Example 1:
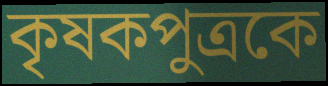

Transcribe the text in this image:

কৃষকপুত্রকে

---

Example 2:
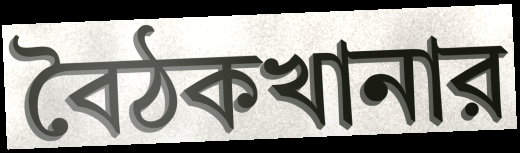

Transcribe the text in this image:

বৈঠকখানার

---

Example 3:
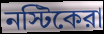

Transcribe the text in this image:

নস্টিকেরা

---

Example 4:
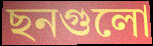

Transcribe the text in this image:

ছনগুলো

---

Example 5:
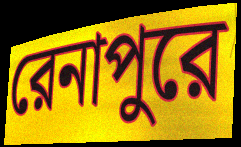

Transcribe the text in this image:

রেনাপুরে